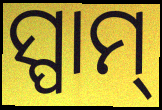
ସ୍ପାମ୍